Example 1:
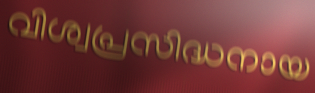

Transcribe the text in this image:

വിശ്വപ്രസിദ്ധനായ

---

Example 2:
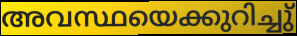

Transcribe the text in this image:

അവസ്ഥയെക്കുറിച്ചു്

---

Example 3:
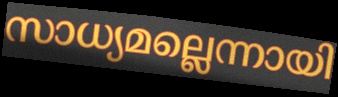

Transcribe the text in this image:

സാധ്യമല്ലെന്നായി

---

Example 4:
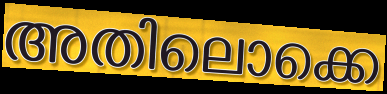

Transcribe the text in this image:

അതിലൊക്കെ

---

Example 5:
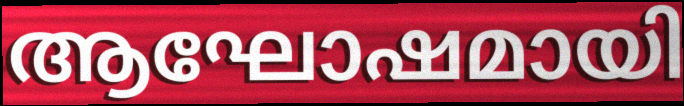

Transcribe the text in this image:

ആഘോഷമായി